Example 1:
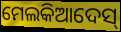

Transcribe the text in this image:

ମେଲକିଆଦେସ୍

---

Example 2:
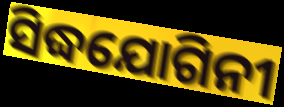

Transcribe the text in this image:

ସିଦ୍ଧଯୋଗିନୀ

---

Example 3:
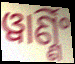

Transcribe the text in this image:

ୱାର୍ଣ୍ଣିଂ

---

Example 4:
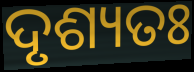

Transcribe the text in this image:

ଦୃଶ୍ୟତଃ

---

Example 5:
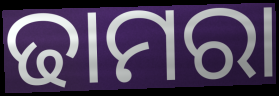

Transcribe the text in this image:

ଢାମରା